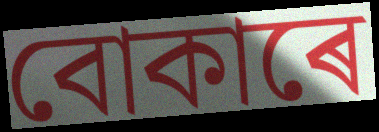
বোকাৰে